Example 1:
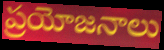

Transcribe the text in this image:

ప్రయోజనాలు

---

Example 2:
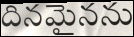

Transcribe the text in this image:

దినమైనను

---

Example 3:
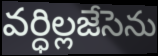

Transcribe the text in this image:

వర్ధిల్లజేసెను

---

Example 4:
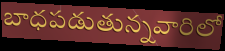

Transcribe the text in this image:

బాధపడుతున్నవారిలో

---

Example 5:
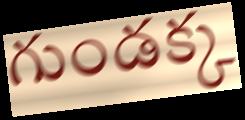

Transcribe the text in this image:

గుండక్క